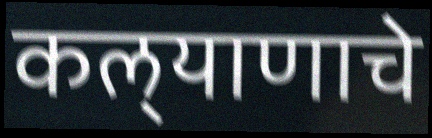
कल्याणाचे